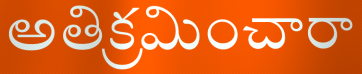
అతిక్రమించారా